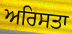
ਅਰਿਸਤਾ